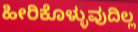
ಹೀರಿಕೊಳ್ಳುವುದಿಲ್ಲ